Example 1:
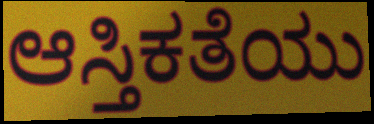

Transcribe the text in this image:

ಆಸ್ತಿಕತೆಯು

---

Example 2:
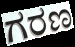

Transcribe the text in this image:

ಗರಣ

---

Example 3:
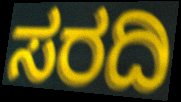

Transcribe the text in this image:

ಸರದಿ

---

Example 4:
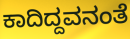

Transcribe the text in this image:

ಕಾದಿದ್ದವನಂತೆ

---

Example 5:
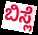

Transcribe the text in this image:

ಬಿಸ್ಲೆ